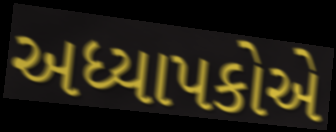
અધ્યાપકોએ